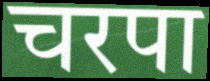
चरपा